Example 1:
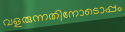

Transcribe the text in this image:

വളരുന്നതിനോടൊപ്പം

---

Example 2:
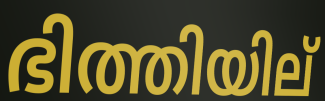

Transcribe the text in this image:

ഭിത്തിയില്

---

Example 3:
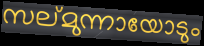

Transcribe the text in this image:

സല്മുന്നായോടും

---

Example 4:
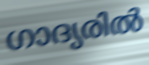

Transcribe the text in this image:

ഗാദ്യരിൽ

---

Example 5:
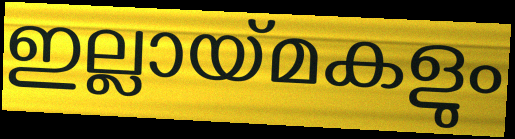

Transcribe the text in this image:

ഇല്ലായ്മകളും